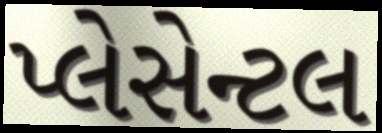
પ્લેસેન્ટલ